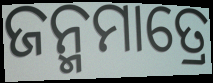
ଜନ୍ମମାତ୍ରେ